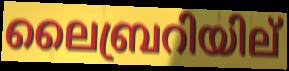
ലൈബ്രറിയില്